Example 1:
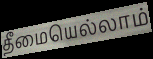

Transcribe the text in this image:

தீமையெல்லாம்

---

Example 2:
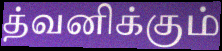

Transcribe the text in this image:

த்வனிக்கும்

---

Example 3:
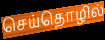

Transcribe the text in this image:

செய்தொழில்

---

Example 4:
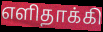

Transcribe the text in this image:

எளிதாக்கி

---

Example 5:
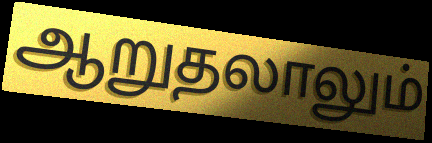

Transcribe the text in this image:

ஆறுதலாலும்